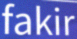
fakir